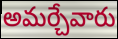
అమర్చేవారు